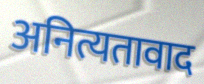
अनित्यतावाद